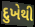
દુખેથી